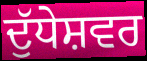
ਦੁੱਧੇਸ਼ਵਰ